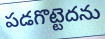
పడగొట్టెదను